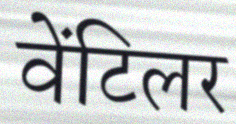
वेंटिलर